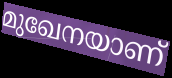
മുഖേനയാണ്